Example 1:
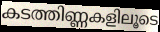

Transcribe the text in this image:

കടത്തിണ്ണകളിലൂടെ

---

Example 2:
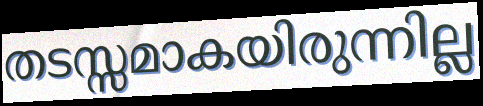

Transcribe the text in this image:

തടസ്സമാകയിരുന്നില്ല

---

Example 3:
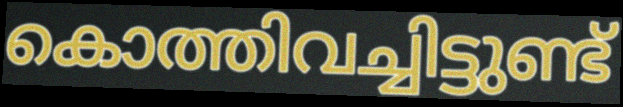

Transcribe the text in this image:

കൊത്തിവച്ചിട്ടുണ്ട്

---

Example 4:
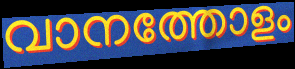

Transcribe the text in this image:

വാനത്തോളം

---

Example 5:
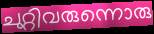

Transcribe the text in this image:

ചുറ്റിവരുന്നൊരു